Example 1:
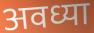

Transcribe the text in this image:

अवध्या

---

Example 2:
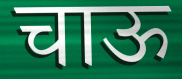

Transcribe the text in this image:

चाऊ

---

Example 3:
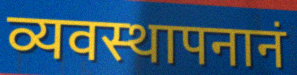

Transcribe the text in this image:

व्यवस्थापनानं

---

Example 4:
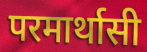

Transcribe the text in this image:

परमार्थासी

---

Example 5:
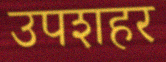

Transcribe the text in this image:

उपशहर